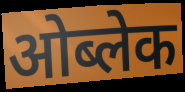
ओब्लेक